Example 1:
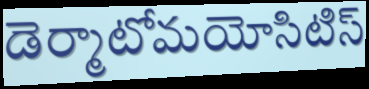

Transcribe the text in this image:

డెర్మాటోమయోసిటిస్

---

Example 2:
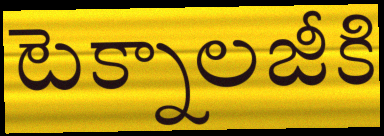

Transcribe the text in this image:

టెక్నాలజీకి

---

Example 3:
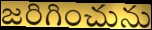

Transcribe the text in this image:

జరిగించును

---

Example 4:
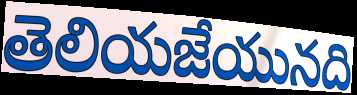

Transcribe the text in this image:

తెలియజేయునది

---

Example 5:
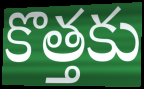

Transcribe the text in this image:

కొత్తకు